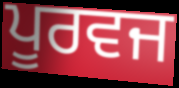
ਪੂਰਵਜ